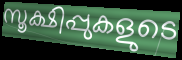
സൂക്ഷിപ്പുകളുടെ